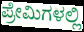
ಪ್ರೇಮಿಗಳಲ್ಲಿ